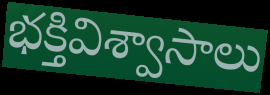
భక్తివిశ్వాసాలు